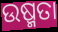
ଉଷ୍ମତା